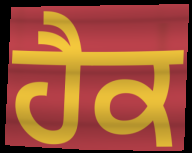
ਹੈਕ